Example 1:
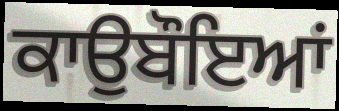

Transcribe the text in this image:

ਕਾਉਬੌਇਆਂ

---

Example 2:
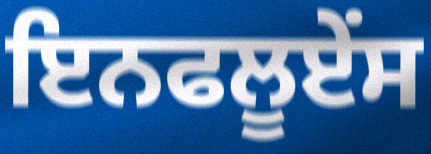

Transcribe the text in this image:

ਇਨਫਲੂਏਂਸ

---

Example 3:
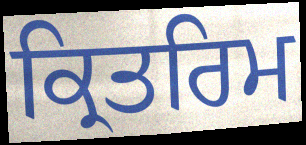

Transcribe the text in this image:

ਕ੍ਰਿਤਰਿਮ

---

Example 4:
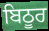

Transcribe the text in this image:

ਬਿਠੂਰ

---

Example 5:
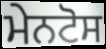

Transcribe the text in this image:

ਮੇਨਟੋਸ